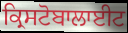
ਕ੍ਰਿਸਟੋਬਾਲਾਈਟ